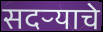
सदऱ्याचे